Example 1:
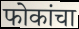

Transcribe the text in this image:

फोकांचा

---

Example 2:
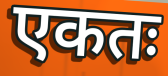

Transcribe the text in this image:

एकतः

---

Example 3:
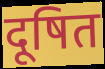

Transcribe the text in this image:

दूषित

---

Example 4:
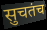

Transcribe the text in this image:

सुचतंच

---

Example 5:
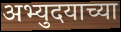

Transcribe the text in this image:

अभ्युदयाच्या